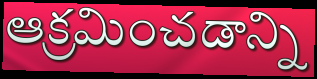
ఆక్రమించడాన్ని